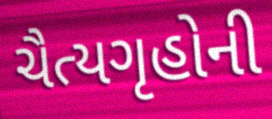
ચૈત્યગૃહોની